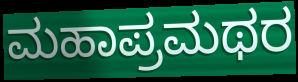
ಮಹಾಪ್ರಮಥರ